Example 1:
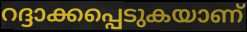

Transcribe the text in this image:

റദ്ദാക്കപ്പെടുകയാണ്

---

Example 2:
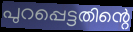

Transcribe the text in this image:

പുറപ്പെട്ടതിന്റെ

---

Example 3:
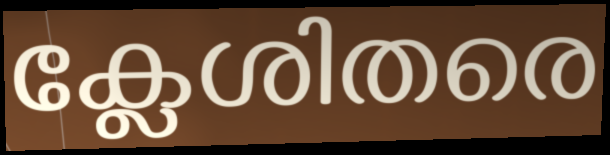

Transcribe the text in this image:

ക്ലേശിതരെ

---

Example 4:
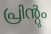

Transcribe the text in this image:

പ്രിന്റും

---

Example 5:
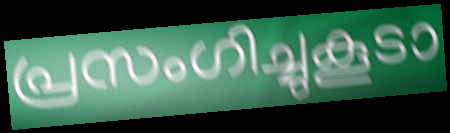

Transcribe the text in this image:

പ്രസംഗിച്ചുകൂടാ